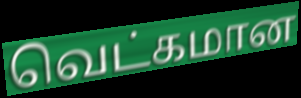
வெட்கமான